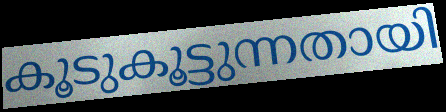
കൂടുകൂട്ടുന്നതായി